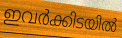
ഇവർക്കിടയിൽ